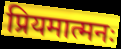
प्रियमात्मनः